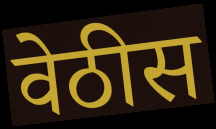
वेठीस